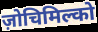
ज़ोचिमिल्को